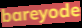
bareyode